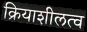
क्रियाशीलत्व